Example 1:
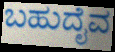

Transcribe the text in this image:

ಬಹುದೈವ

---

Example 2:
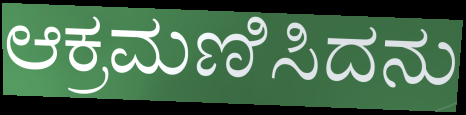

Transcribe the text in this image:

ಆಕ್ರಮಣಿಸಿದನು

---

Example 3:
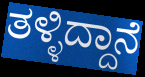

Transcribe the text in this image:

ತಳ್ಳಿದ್ದಾನೆ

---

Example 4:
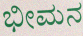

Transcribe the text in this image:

ಭೀಮನ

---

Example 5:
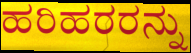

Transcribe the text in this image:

ಹರಿಹರರನ್ನು